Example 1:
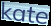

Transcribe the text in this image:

kate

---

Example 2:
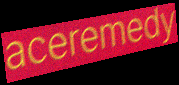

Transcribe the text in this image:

aceremedy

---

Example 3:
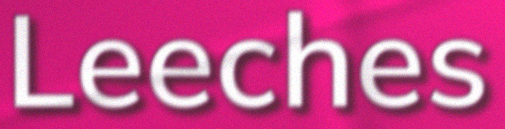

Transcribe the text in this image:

Leeches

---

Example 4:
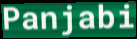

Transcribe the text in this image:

Panjabi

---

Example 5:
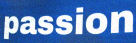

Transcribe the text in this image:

passion